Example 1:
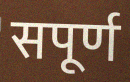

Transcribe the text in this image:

सपूर्ण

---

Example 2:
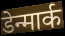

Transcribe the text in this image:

डेन्मार्क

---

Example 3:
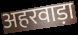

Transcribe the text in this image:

अहरवाड़ा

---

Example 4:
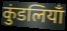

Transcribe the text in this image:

कुंडलियाँ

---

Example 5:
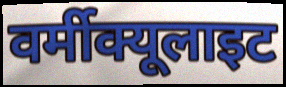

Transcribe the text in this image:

वर्मीक्यूलाइट